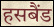
हसबैंड